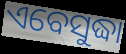
ଏବେସୁଦ୍ଧା